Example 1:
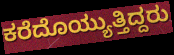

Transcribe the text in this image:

ಕರೆದೊಯ್ಯುತ್ತಿದ್ದರು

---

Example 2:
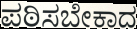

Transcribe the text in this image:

ಪಠಿಸಬೇಕಾದ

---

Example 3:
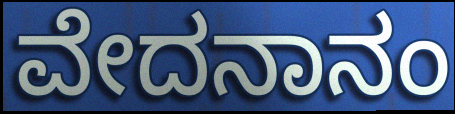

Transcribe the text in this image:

ವೇದನಾನಂ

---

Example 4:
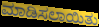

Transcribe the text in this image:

ಮಾಡಿಸಲಾಯಿತು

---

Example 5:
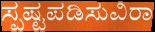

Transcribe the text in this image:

ಸ್ಪಷ್ಟಪಡಿಸುವಿರಾ